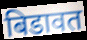
बिडावत